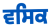
ਵਸਿਕ